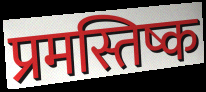
प्रमस्तिष्क